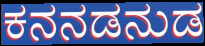
ಕನನಡನುಡ